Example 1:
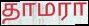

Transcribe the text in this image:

தாமரா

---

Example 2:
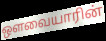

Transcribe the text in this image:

ஔவையாரின்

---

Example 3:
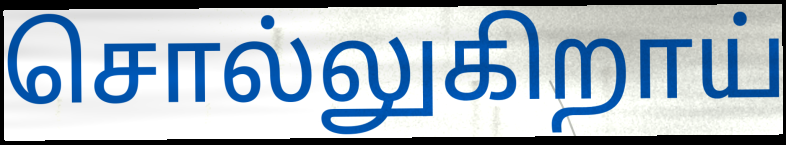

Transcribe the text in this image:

சொல்லுகிறாய்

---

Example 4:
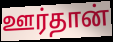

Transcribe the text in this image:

ஊர்தான்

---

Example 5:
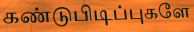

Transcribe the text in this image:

கண்டுபிடிப்புகளே